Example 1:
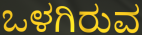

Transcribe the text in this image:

ಒಳಗಿರುವ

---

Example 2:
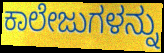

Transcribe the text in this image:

ಕಾಲೇಜುಗಳನ್ನು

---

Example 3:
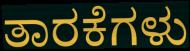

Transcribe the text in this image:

ತಾರಕೆಗಳು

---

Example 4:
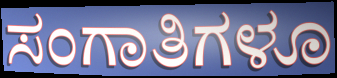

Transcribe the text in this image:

ಸಂಗಾತಿಗಳೂ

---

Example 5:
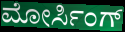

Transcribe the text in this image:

ಮೋರ್ಸಿಂಗ್